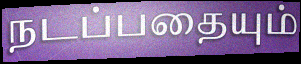
நடப்பதையும்